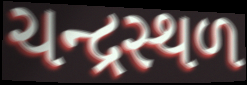
ચન્દ્રસ્થળ